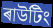
ৰাউটিং